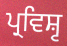
ਪ੍ਰਵਿਸ਼੍ਟ